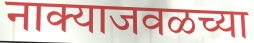
नाक्याजवळच्या